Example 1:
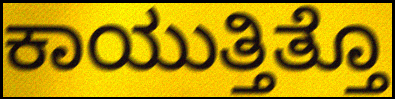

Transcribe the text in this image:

ಕಾಯುತ್ತಿತ್ತೊ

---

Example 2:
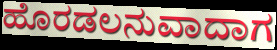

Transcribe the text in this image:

ಹೊರಡಲನುವಾದಾಗ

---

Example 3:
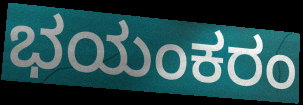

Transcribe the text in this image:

ಭಯಂಕರಂ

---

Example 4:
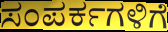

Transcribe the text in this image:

ಸಂಪರ್ಕಗಳಿಗೆ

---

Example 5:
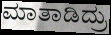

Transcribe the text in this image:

ಮಾತಾಡಿದ್ರು